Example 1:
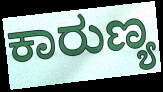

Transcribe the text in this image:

ಕಾರುಣ್ಯ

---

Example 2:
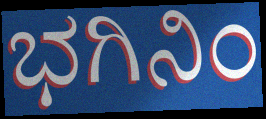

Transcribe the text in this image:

ಭಗಿನಿಂ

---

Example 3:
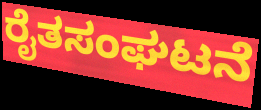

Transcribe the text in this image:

ರೈತಸಂಘಟನೆ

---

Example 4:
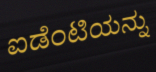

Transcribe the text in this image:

ಐಡೆಂಟಿಯನ್ನು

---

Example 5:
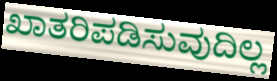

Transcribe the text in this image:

ಖಾತರಿಪಡಿಸುವುದಿಲ್ಲ